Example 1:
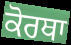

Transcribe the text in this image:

ਕੋਰਥਾ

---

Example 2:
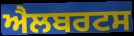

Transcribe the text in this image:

ਐਲਬਰਟਸ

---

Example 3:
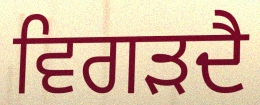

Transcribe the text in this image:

ਵਿਗੜਦੈ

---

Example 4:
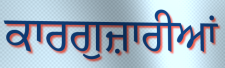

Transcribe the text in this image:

ਕਾਰਗੁਜ਼ਾਰੀਆਂ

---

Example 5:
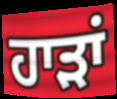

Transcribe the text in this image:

ਹਾੜਾਂ